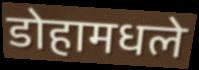
डोहामधले